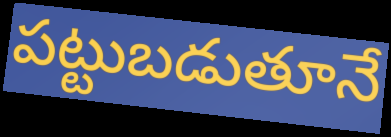
పట్టుబడుతూనే